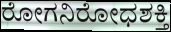
ರೋಗನಿರೋಧಶಕ್ತಿ